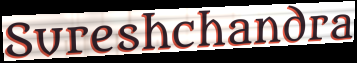
Sureshchandra